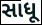
સાધૂ